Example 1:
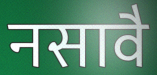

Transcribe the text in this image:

नसावै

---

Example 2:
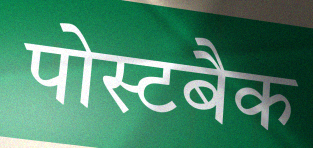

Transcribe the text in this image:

पोस्टबैक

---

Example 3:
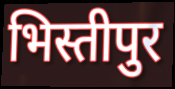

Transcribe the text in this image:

भिस्तीपुर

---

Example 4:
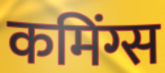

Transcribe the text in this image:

कमिंग्स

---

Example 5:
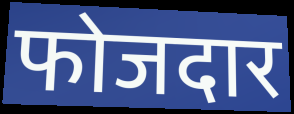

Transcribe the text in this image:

फोजदार